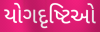
યોગદૃષ્ટિઓ